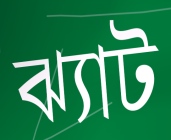
ঝ্যাট